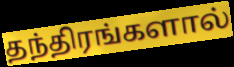
தந்திரங்களால்